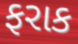
ફરાક